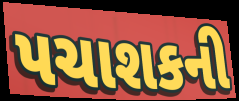
પચાશકની